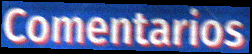
Comentarios